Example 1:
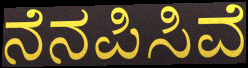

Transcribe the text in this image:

ನೆನಪಿಸಿವೆ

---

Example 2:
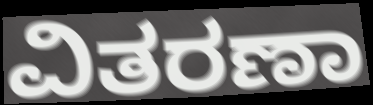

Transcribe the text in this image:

ವಿತರಣಾ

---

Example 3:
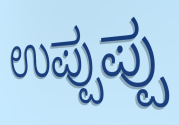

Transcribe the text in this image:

ಉಪ್ಪುಪ್ಪು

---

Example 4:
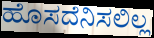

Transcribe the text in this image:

ಹೊಸದೆನಿಸಲಿಲ್ಲ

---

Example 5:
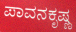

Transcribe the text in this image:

ಪಾವನಕೃಷ್ಣ